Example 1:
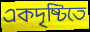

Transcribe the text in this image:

একদৃষ্টিতে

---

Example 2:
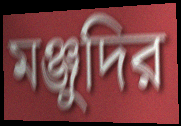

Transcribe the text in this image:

মঞ্জুদির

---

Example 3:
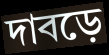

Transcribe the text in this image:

দাবড়ে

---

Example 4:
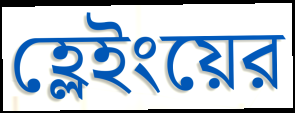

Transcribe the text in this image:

হ্লেইংয়ের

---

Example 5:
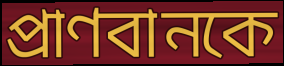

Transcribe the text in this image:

প্রাণবানকে